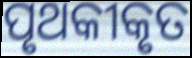
ପୃଥକୀକୃତ